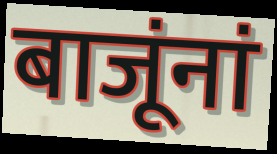
बाजूंनां